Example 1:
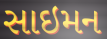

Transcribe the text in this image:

સાઇમન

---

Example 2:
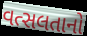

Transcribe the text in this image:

વત્સલતાનો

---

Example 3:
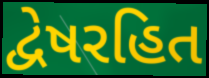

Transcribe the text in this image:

દ્વેષરહિત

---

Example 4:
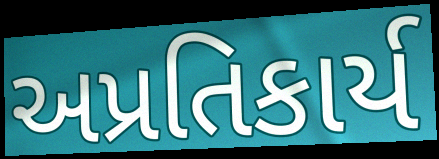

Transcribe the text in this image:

અપ્રતિકાર્ય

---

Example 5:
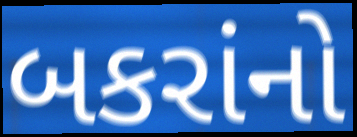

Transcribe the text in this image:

બકરાંનો